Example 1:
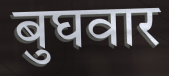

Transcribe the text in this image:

बुघवार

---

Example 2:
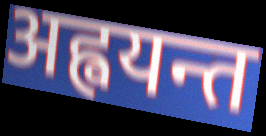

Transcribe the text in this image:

अह्वयन्त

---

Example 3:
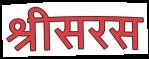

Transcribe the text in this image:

श्रीसरस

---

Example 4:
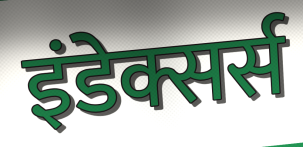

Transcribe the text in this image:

इंडेक्सर्स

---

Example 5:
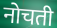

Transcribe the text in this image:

नोचती